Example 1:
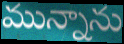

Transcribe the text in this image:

మున్నాను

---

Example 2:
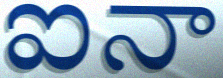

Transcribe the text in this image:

ఐనా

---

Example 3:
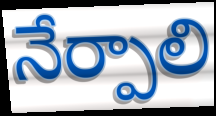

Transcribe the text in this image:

నేర్పాలి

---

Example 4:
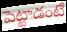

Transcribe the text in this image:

పెట్టాడంటే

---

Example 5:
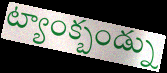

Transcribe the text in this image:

ట్యాంక్బండ్ను